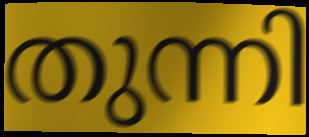
തുന്നി